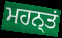
ਮਹਨ੍ਤਂ